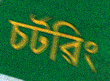
চৰ্টৱিং